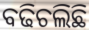
ବଢିଚଲିଛି